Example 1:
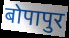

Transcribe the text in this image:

बोपापुर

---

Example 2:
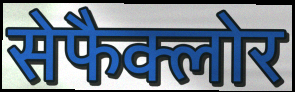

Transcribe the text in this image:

सेफैक्लोर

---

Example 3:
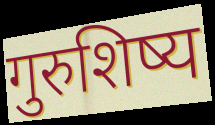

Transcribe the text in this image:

गुरुशिष्य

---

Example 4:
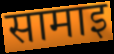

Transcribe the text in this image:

सामाइ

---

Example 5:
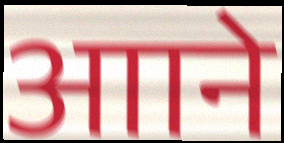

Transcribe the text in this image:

आाने